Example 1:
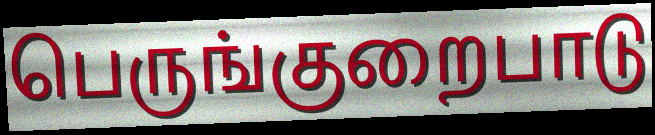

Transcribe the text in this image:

பெருங்குறைபாடு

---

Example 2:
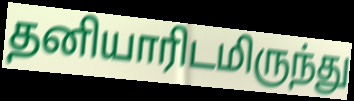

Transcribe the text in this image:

தனியாரிடமிருந்து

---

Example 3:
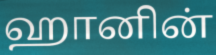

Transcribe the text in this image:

ஹானின்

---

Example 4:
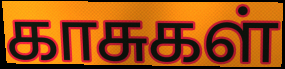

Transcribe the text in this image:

காசுகள்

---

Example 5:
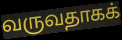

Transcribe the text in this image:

வருவதாகக்